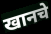
खानचे